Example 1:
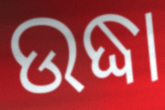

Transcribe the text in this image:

ଉଦ୍ଧା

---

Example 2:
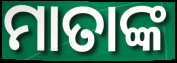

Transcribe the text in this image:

ମାତାଙ୍କ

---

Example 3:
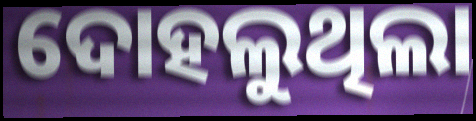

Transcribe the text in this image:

ଦୋହଲୁଥିଲା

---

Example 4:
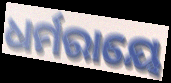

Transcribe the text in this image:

ଧର୍ମରାୟେ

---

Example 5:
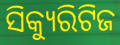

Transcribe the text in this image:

ସିକ୍ୟୁରିଟିଜ